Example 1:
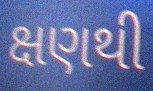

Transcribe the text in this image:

ક્ષણથી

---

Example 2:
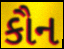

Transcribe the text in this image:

કૌન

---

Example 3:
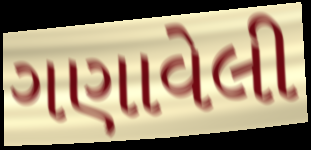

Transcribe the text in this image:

ગણાવેલી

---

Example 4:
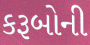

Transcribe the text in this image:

કરૂબોની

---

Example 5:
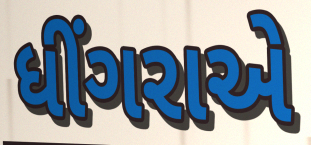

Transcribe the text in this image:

ધીંગરાએ